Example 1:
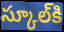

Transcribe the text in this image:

స్కూల్‌కి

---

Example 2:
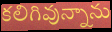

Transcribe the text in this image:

కలిగివున్నాను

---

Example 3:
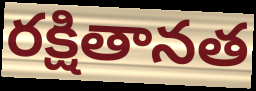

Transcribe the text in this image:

రక్షితానత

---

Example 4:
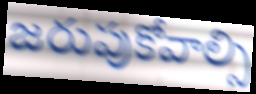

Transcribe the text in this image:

జరుపుకోవాల్సి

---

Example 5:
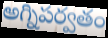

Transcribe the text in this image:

అగ్నిపర్వతం